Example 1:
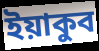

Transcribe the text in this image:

ইয়াকুব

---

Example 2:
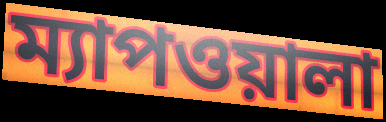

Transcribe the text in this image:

ম্যাপওয়ালা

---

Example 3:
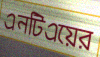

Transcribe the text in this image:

এনটিএয়ের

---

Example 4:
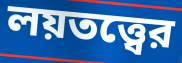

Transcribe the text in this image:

লয়তত্ত্বের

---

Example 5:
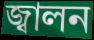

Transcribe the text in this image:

জ্বালন